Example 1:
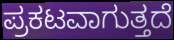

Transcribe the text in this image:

ಪ್ರಕಟವಾಗುತ್ತದೆ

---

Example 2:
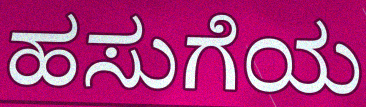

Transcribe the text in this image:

ಹಸುಗೆಯ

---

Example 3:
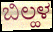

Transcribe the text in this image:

ಬಿಲ್ಹಳ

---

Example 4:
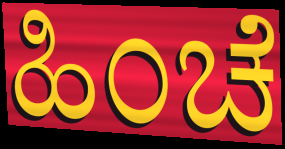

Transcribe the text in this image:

ಹಿಂಚೆ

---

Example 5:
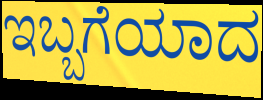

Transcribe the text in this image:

ಇಬ್ಬಗೆಯಾದ